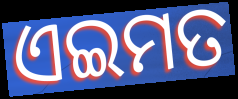
ଏଇମତ